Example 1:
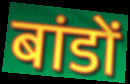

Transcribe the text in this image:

बांडों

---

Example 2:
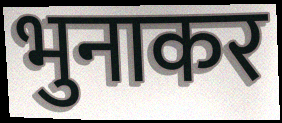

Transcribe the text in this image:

भुनाकर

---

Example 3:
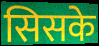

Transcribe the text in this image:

सिसके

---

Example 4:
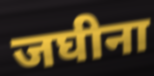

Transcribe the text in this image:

जघीना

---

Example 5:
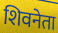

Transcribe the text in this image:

शिवनेता